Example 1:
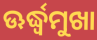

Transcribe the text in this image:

ଊର୍ଦ୍ଧ୍ବମୁଖା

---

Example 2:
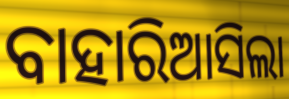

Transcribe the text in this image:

ବାହାରିଆସିଲା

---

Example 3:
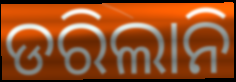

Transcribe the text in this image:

ଡରିଲାନି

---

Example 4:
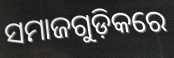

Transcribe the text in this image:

ସମାଜଗୁଡ଼ିକରେ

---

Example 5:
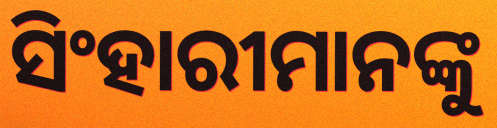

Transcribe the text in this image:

ସିଂହାରୀମାନଙ୍କୁ